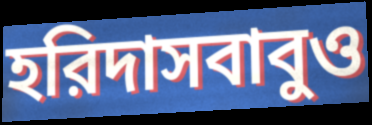
হরিদাসবাবুও